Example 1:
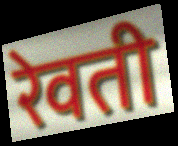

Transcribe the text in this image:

रेवती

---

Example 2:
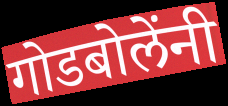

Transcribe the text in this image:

गोडबोलेंनी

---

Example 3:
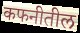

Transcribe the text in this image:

कफनीतील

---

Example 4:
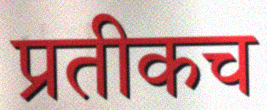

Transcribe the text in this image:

प्रतीकच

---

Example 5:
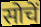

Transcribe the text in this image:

सोचें